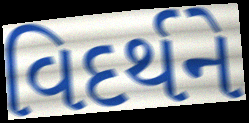
વિદર્થને